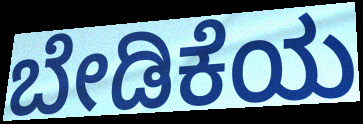
ಬೇಡಿಕೆಯ